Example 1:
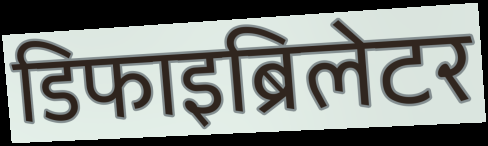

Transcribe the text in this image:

डिफाइब्रिलेटर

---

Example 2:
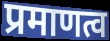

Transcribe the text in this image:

प्रमाणत्व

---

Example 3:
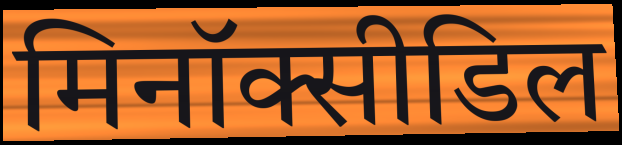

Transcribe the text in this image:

मिनॉक्सीडिल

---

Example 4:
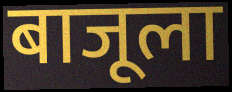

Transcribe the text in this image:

बाजूला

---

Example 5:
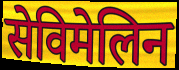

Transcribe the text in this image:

सेविमेलिन